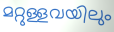
മറ്റുള്ളവയിലും